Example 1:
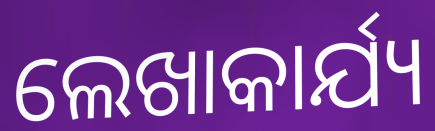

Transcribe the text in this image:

ଲେଖାକାର୍ଯ୍ୟ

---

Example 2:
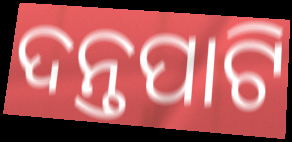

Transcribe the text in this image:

ଦନ୍ତପାଟି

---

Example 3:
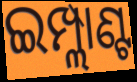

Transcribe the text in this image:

ଇମ୍ପ୍ଲାଣ୍ଟ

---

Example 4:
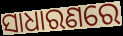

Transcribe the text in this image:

ସାଧାରଣରେ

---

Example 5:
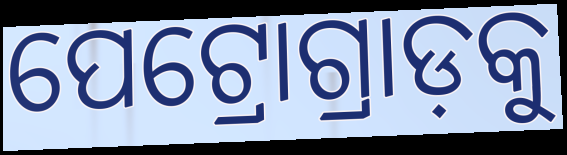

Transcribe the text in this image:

ପେଟ୍ରୋଗ୍ରାଡ଼କୁ